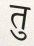
तु